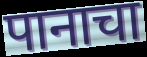
पानाचा